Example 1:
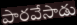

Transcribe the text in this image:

పారవేసాడు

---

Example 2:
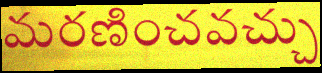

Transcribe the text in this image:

మరణించవచ్చు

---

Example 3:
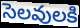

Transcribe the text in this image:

సెలవులకి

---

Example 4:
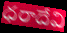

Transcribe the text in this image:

ధరాదేవి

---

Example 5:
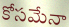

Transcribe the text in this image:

కోసమేనా